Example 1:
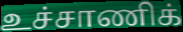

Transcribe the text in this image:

உச்சாணிக்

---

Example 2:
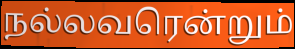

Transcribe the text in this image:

நல்லவரென்றும்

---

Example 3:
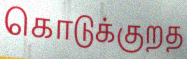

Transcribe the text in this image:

கொடுக்குறத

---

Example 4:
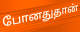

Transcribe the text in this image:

போனதுதான்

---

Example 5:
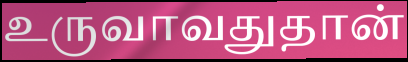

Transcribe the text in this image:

உருவாவதுதான்